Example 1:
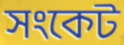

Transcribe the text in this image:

সংকেট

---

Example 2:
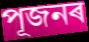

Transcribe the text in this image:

পূজনৰ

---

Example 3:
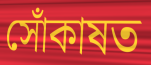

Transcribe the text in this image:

সোঁকাষত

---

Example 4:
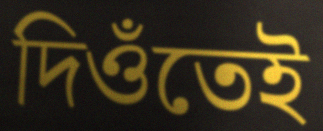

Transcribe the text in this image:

দিওঁতেই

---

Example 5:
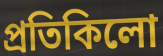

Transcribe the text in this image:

প্ৰতিকিলো